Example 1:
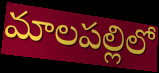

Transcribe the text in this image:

మాలపల్లిలో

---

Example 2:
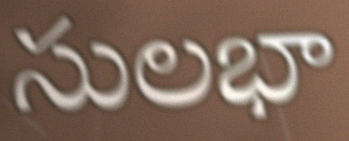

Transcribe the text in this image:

సులభా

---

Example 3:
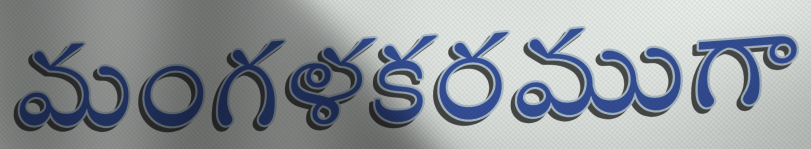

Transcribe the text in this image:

మంగళకరముగా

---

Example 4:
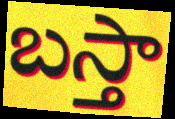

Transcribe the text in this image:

బస్తా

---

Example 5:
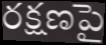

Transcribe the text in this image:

రక్షణపై